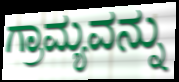
ಗ್ರಾಮ್ಯವನ್ನು